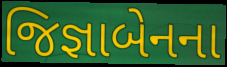
જિજ્ઞાબેનના